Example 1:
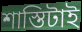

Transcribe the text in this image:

শাস্তিটাই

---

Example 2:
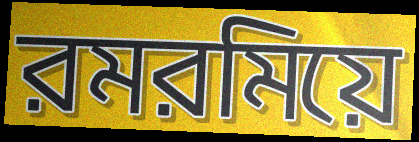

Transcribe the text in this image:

রমরমিয়ে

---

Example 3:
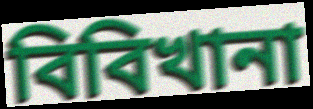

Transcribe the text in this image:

বিবিখানা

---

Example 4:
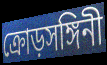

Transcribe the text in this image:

ক্রোড়সঙ্গিনী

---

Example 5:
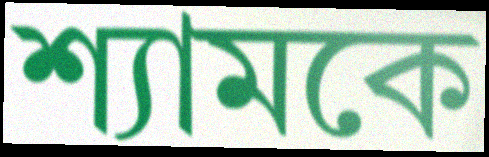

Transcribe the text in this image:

শ্যামকে